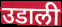
उडाली